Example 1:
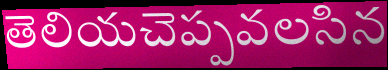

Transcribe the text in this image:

తెలియచెప్పవలసిన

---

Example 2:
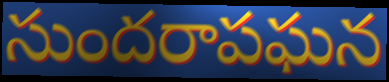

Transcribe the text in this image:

సుందరాపఘన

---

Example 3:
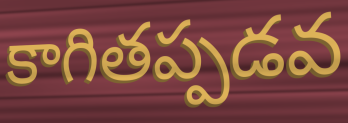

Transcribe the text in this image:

కాగితప్పడవ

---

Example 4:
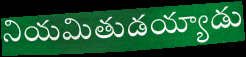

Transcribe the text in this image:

నియమితుడయ్యాడు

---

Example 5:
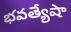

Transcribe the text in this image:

భవత్యేషా